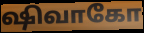
ஷிவாகோ